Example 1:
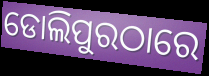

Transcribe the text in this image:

ଡୋଲିପୁରଠାରେ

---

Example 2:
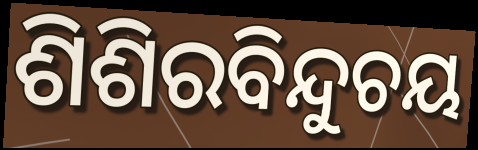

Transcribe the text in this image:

ଶିଶିରବିନ୍ଦୁଚୟ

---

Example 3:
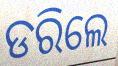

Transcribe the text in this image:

ଡରିଲେ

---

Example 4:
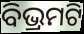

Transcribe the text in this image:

ବିଭ୍ରମଟି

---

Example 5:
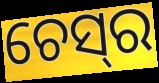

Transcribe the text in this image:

ଚେସ୍‌ର